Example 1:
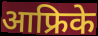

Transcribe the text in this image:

आफ्रिके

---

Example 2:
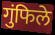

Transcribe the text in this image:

गुंफिले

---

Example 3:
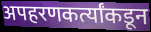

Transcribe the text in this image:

अपहरणकर्त्यांकडून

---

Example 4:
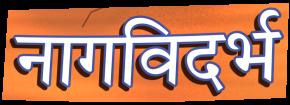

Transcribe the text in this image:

नागविदर्भ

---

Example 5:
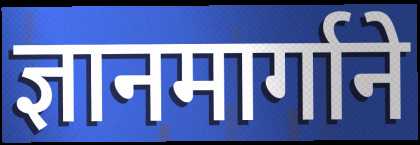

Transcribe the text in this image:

ज्ञानमार्गाने